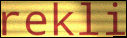
rekli